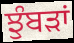
ਝੁੰਬੜਾਂ